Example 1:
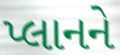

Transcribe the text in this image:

પ્લાનને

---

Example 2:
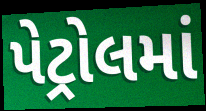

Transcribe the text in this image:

પેટ્રોલમાં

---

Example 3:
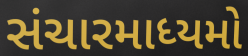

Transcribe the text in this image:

સંચારમાધ્યમો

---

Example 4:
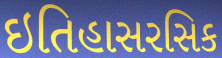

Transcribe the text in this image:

ઇતિહાસરસિક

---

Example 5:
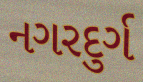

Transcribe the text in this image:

નગરદુર્ગ